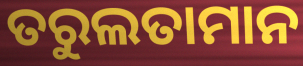
ତରୁଲତାମାନ